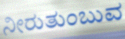
ನೀರುತುಂಬುವ